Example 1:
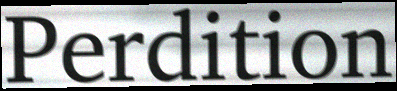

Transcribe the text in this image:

Perdition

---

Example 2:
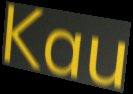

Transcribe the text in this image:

Kau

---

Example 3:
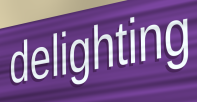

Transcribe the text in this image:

delighting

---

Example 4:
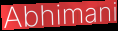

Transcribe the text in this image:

Abhimani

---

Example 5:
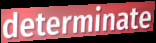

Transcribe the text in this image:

determinate